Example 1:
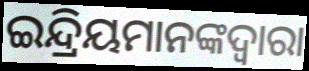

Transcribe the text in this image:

ଇନ୍ଦ୍ରିୟମାନଙ୍କଦ୍ୱାରା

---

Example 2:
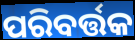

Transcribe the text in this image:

ପରିବର୍ତ୍ତକ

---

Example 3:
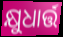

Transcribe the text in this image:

କ୍ଷୁଧାର୍ତ୍ତ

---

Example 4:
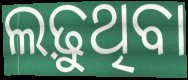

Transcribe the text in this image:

ଲଢ଼ୁଥିବା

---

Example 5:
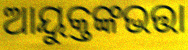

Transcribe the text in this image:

ଆୟୁକ୍ତଙ୍କଭତ୍ତା